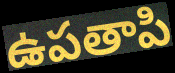
ఉపతాపి